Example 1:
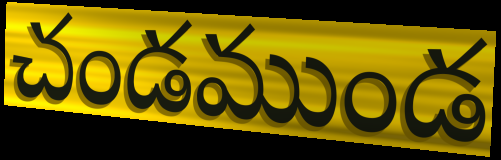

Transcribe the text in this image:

చండముండ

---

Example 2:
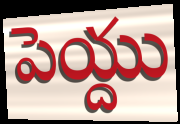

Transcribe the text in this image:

పెయ్దు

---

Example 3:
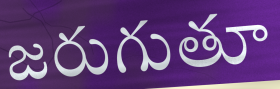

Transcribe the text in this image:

జరుగుతూ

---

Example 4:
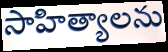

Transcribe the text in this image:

సాహిత్యాలను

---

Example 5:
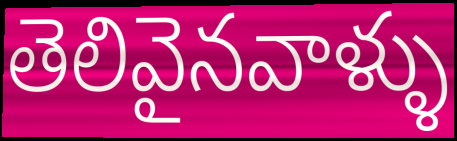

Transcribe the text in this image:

తెలివైనవాళ్ళు